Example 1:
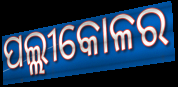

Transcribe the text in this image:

ପଲ୍ଲୀକୋଳର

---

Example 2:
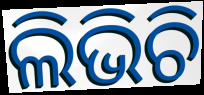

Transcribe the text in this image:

ଲିଭିଚି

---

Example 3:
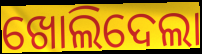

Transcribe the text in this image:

ଖୋଲିଦେଲା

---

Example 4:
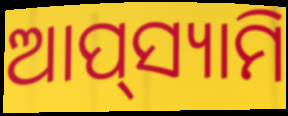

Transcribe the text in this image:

ଆପ୍‌ସ୍ୟାମି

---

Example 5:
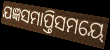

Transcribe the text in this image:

ଯଜ୍ଞସମାପ୍ତିସମୟେ